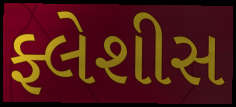
ફ્લેશીસ